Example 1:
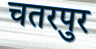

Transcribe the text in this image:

चतरपुर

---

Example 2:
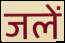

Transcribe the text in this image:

जलें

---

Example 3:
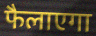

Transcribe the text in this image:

फैलाएगा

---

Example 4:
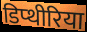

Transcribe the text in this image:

डिप्थीरिया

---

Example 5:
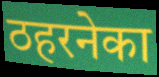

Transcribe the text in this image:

ठहरनेका